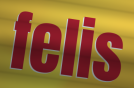
felis